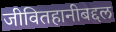
जीवितहानीबद्दल